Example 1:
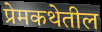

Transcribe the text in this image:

प्रेमकथेतील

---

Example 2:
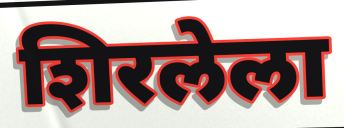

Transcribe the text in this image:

शिरलेला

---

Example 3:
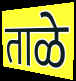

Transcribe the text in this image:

ताळे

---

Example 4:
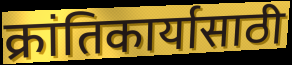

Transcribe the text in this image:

क्रांतिकार्यासाठी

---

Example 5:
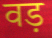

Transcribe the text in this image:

वड़